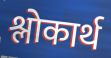
श्लोकार्थ